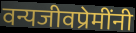
वन्यजीवप्रेमींनी